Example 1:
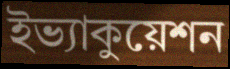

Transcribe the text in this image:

ইভ্যাকুয়েশন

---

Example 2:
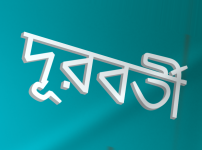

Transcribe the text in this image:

দূরবর্তী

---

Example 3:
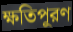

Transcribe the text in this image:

ক্ষতিপূরণ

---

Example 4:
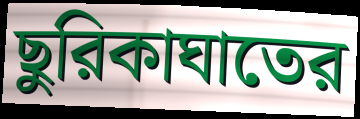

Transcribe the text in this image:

ছুরিকাঘাতের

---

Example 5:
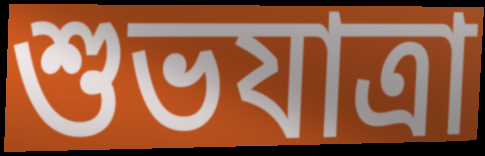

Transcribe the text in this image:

শুভযাত্রা